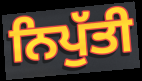
ਨਿਪੁੱਤੀ